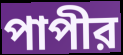
পাপীর